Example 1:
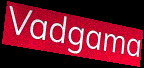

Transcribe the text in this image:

Vadgama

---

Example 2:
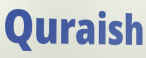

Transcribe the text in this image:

Quraish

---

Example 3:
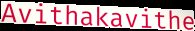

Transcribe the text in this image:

Avithakavithe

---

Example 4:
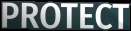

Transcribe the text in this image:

PROTECT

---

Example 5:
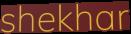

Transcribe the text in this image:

shekhar